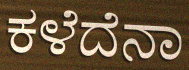
ಕಳೆದೆನಾ